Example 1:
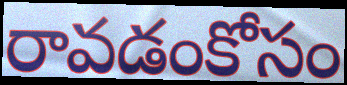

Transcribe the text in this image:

రావడంకోసం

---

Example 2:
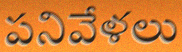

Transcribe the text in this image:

పనివేళలు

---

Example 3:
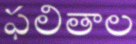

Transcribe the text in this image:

ఫలితాల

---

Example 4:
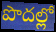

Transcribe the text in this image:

పొదల్లో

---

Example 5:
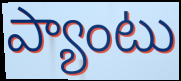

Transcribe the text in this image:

ప్యాంటు